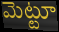
మెట్టూ